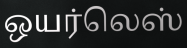
ஒயர்லெஸ்